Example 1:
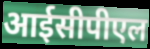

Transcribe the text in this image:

आईसीपीएल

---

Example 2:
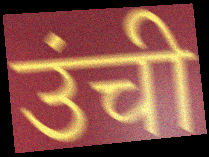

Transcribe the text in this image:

उंची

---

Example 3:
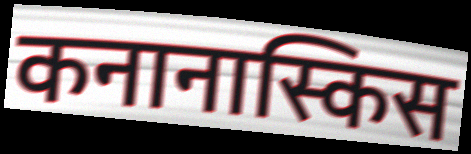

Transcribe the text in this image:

कनानास्किस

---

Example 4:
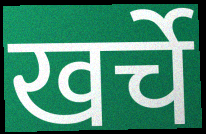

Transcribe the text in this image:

खर्चे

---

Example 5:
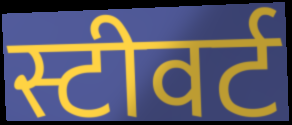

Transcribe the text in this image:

स्टीवर्ट